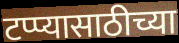
टप्प्यासाठीच्या